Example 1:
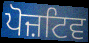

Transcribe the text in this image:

ਪੋਜ਼ਟਿਵ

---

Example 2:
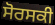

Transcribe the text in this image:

ਸੋਰਸਕੀ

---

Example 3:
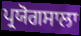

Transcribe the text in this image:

ਪ੍ਰਯੋਗਸਾਲਾ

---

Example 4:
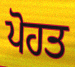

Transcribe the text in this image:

ਪੋਹਤ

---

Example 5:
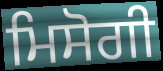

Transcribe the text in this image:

ਮਿਸੋਗੀ